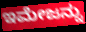
ಇಮೇಜನ್ನು